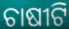
ଚାଷୀଟି